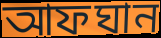
আফঘান